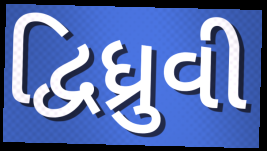
દ્વિધ્રુવી